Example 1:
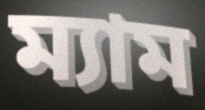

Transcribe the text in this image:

ম্যাম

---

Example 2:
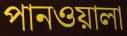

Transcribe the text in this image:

পানওয়ালা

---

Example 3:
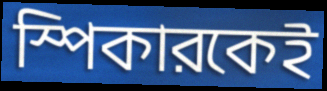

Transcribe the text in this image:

স্পিকারকেই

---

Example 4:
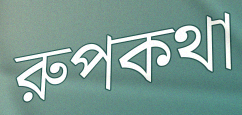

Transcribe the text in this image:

রুপকথা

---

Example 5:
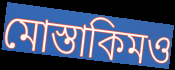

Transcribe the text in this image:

মোস্তাকিমও